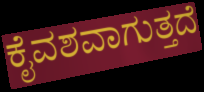
ಕೈವಶವಾಗುತ್ತದೆ